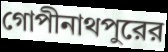
গোপীনাথপুরের